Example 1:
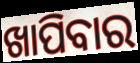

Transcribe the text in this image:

ଖାପିବାର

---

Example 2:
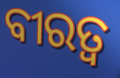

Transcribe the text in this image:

ବୀରତ୍ଵ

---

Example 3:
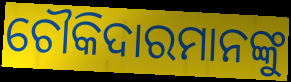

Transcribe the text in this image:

ଚୌକିଦାରମାନଙ୍କୁ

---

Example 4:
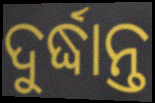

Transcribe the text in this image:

ଦୁର୍ଦ୍ଧାନ୍ତ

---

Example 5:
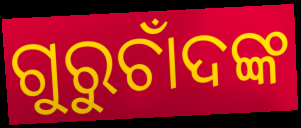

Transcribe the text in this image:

ଗୁରୁଚାଁଦଙ୍କ